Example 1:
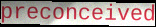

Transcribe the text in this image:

preconceived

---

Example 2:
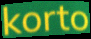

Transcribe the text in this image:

korto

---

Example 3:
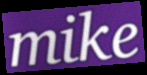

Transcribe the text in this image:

mike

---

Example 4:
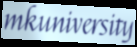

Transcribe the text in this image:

mkuniversity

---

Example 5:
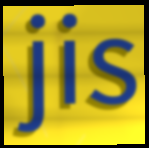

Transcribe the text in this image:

jis